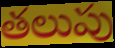
తలుపు